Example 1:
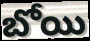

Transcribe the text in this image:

బోయి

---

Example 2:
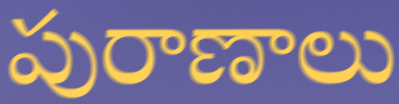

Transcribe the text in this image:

పురాణాలు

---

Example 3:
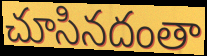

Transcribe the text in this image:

చూసినదంతా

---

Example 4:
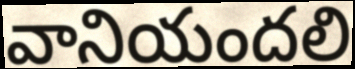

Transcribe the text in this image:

వానియందలి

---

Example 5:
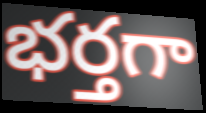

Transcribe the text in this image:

భర్తగా